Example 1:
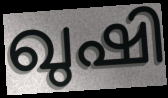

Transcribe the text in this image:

ഖുഷി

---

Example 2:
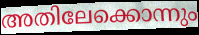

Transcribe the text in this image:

അതിലേക്കൊന്നും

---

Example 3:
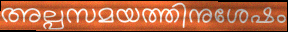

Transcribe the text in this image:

അല്പസമയത്തിനുശേഷം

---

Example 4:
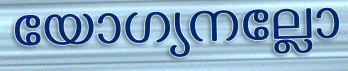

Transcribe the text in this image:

യോഗ്യനല്ലോ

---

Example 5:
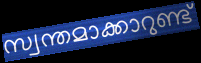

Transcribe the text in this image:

സ്വന്തമാക്കാറുണ്ട്